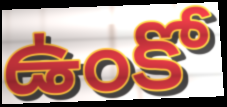
ఉంకో